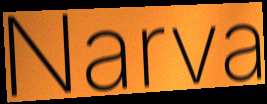
Narva